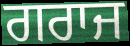
ਗਰਾਜ